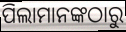
ପିଲାମାନଙ୍କଠାରୁ